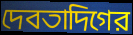
দেবতাদিগের